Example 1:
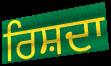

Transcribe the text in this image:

ਰਿਸ਼ਦਾ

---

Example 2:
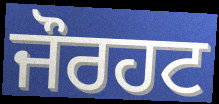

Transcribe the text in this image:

ਜੌਰਹਟ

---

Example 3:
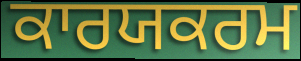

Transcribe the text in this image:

ਕਾਰਯਕਰਮ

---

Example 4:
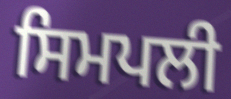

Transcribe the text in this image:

ਸਿਮਪਲੀ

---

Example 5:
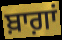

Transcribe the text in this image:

ਬ਼ਾਗ਼ਾਂ